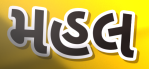
મહલ